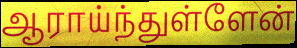
ஆராய்ந்துள்ளேன்